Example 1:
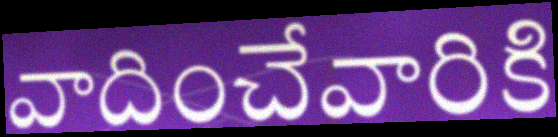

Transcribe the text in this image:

వాదించేవారికి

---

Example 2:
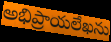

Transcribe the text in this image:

అభిప్రాయలేఖను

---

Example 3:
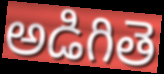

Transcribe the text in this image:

అడిగితె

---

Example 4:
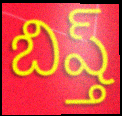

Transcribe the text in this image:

బిష్త్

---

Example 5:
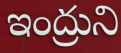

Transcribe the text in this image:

ఇంద్రుని